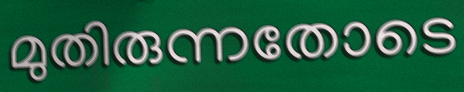
മുതിരുന്നതോടെ